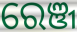
ରେଞ୍ଜ